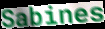
Sabines